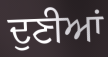
ਦੁਣੀਆਂ